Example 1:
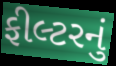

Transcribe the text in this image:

ફીલ્ટરનું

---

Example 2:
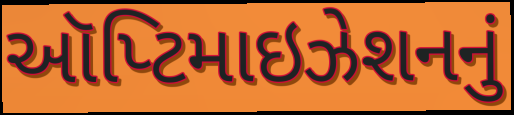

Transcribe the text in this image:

ઑપ્ટિમાઇઝેશનનું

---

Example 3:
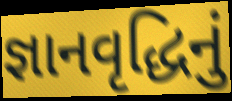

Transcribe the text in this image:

જ્ઞાનવૃદ્ધિનું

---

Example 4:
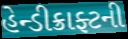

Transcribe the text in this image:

હેન્ડીક્રાફ્ટની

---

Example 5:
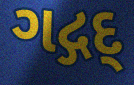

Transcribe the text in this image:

ગદ્ગદ્